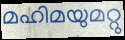
മഹിമയുമറ്റു